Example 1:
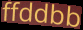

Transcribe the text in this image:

ffddbb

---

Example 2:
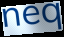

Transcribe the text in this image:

neq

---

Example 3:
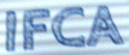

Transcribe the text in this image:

IFCA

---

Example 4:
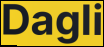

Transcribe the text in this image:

Dagli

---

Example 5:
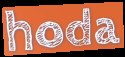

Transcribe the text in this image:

hoda